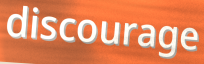
discourage